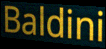
Baldini